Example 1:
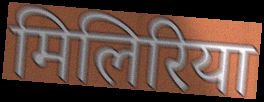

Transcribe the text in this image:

मिलिरिया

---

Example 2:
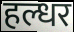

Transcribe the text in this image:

हल्धर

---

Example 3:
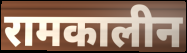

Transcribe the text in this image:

रामकालीन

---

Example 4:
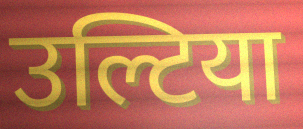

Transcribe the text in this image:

उल्टिया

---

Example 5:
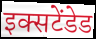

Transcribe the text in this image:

इक्सटेंडेड